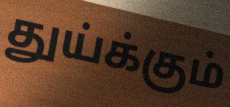
துய்க்கும்